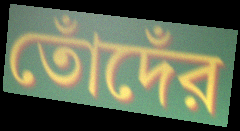
তোঁদেঁর